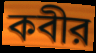
কবীর